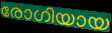
രോഗിയായ